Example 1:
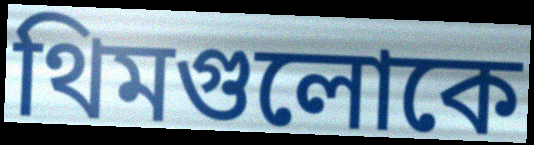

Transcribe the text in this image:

থিমগুলোকে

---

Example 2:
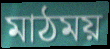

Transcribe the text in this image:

মাঠময়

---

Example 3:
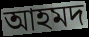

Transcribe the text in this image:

আহমদ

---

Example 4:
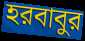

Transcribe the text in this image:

হরবাবুর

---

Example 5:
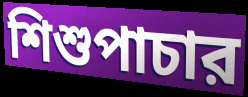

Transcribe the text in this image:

শিশুপাচার